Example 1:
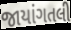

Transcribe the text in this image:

જાયાંગતલી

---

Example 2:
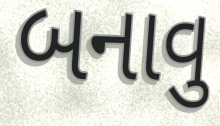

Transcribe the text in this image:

બનાવુ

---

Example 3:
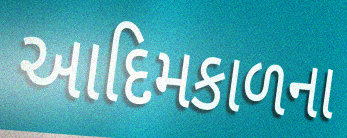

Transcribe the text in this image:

આદિમકાળના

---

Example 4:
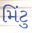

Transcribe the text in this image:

મિંટુ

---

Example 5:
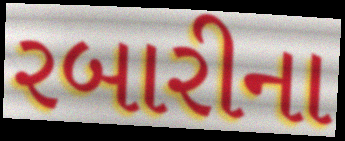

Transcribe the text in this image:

રબારીના